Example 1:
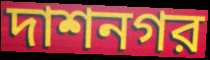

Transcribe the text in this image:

দাশনগর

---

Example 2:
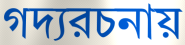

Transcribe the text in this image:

গদ্যরচনায়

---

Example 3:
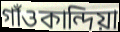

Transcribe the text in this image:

গাঁওকান্দিয়া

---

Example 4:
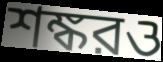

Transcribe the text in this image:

শঙ্করও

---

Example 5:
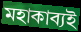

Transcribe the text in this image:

মহাকাব্যই